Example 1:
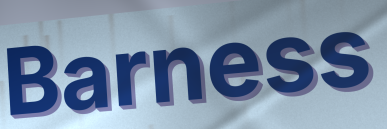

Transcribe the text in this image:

Barness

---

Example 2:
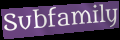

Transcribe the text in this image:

Subfamily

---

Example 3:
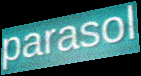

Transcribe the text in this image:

parasol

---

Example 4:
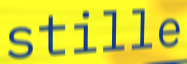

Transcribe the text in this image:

stille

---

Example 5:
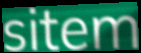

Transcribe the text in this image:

sitem